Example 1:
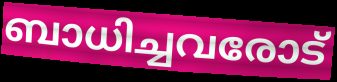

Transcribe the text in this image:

ബാധിച്ചവരോട്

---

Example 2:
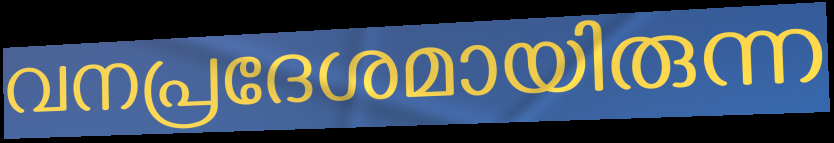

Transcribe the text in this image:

വനപ്രദേശമായിരുന്ന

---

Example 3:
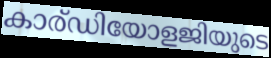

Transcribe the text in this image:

കാര്ഡിയോളജിയുടെ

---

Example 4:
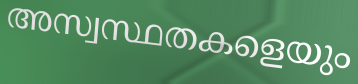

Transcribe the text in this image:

അസ്വസ്ഥതകളെയും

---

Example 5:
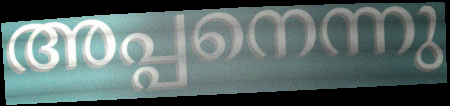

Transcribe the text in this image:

അപ്പനെന്നു